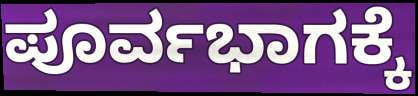
ಪೂರ್ವಭಾಗಕ್ಕೆ